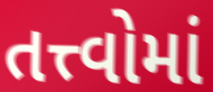
તત્ત્વોમાં